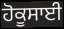
ਹੋਕੂਸਾਈ